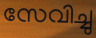
സേവിച്ചു